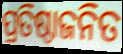
ପ୍ରତିଷ୍ଠାଜନିତ